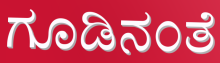
ಗೂಡಿನಂತೆ